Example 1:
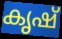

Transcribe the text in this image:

കൃഷ്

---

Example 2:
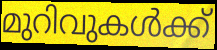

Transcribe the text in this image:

മുറിവുകൾക്ക്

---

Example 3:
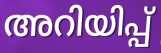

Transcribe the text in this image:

അറിയിപ്പ്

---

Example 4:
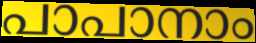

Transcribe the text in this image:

പാപാനാം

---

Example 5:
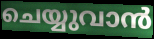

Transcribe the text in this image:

ചെയ്യുവാൻ